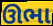
ઊભા